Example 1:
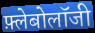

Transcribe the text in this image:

फ़्लेबोलॉजी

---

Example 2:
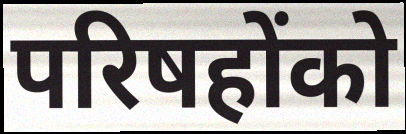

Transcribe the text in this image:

परिषहोंको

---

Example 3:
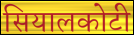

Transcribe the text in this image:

सियालकोटी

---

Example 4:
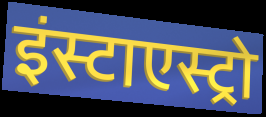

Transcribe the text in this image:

इंस्टाएस्ट्रो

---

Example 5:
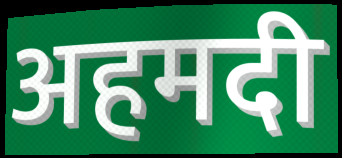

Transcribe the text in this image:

अहमदी